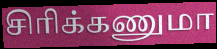
சிரிக்கணுமா